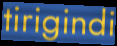
tirigindi